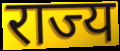
राज्य